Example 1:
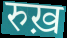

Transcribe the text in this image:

रुख़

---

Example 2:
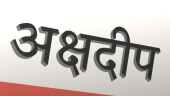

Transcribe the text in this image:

अक्षदीप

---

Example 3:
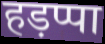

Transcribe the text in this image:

हड़प्पा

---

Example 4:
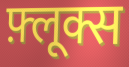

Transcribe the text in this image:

फ़्लूक्स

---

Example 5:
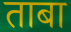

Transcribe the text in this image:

ताबा